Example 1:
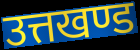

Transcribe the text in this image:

उत्तखण्ड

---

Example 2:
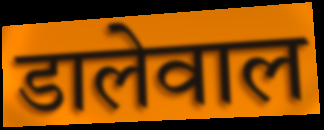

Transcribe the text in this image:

डालेवाल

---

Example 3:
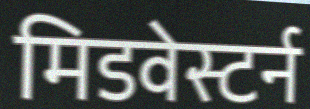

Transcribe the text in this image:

मिडवेस्टर्न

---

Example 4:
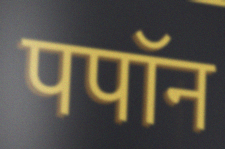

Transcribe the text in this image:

पपॉन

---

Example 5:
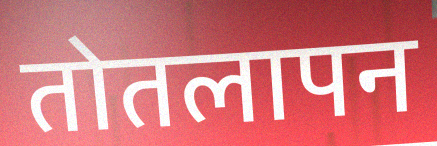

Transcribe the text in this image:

तोतलापन